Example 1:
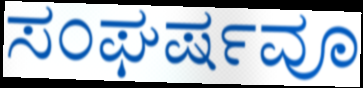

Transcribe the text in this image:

ಸಂಘರ್ಷವೂ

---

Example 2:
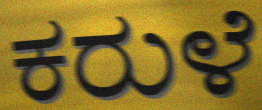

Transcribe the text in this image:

ಕರುಳೆ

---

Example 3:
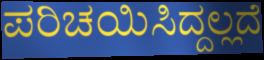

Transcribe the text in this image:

ಪರಿಚಯಿಸಿದ್ದಲ್ಲದೆ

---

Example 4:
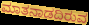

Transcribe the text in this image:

ಮಾತನಾಡದಿರುವ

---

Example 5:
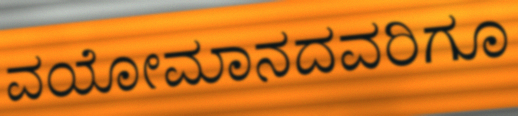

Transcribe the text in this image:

ವಯೋಮಾನದವರಿಗೂ